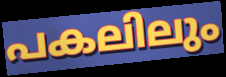
പകലിലും